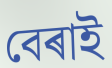
বেৰাই